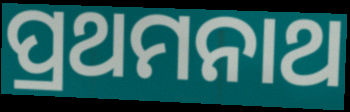
ପ୍ରଥମନାଥ